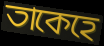
তাকেহে